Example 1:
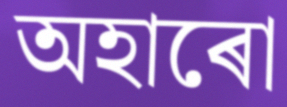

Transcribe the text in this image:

অহাৰো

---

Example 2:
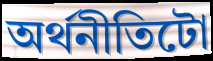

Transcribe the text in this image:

অৰ্থনীতিটো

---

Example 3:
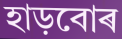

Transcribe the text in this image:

হাড়বোৰ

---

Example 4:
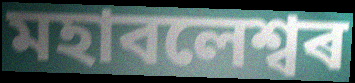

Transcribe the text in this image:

মহাবলেশ্বৰ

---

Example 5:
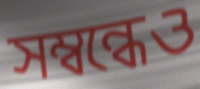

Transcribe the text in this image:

সম্বন্ধেও